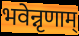
भवेन्नृणाम्